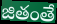
జితంతే